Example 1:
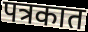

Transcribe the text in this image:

पत्रकात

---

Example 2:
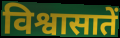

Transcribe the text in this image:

विश्वासातें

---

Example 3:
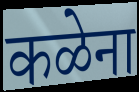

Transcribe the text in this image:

कळेना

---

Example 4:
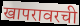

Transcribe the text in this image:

खापरावरची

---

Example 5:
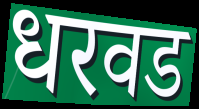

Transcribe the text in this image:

धरवड